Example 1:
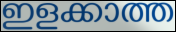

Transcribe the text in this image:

ഇളക്കാത്ത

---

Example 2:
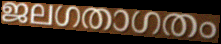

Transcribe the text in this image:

ജലഗതാഗതം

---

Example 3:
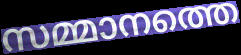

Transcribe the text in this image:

സമ്മാനത്തെ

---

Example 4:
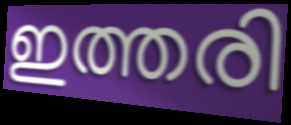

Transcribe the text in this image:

ഇത്തരി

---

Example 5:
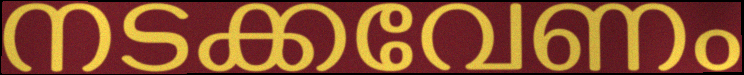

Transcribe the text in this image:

നടക്കവേണം